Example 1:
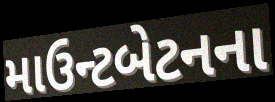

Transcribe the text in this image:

માઉન્ટબેટનના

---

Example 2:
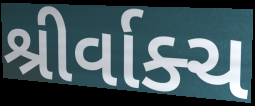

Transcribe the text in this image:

શ્રીર્વાક્ચ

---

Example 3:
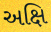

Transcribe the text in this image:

અક્ષિ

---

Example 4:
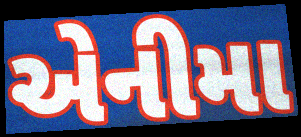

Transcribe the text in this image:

એનીમા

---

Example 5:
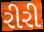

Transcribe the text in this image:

રીરી